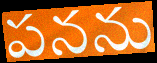
పనను